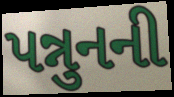
પન્નુનની